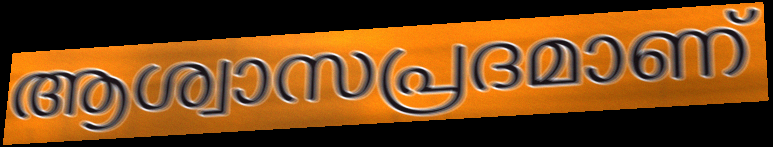
ആശ്വാസപ്രദമാണ്